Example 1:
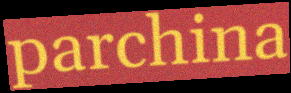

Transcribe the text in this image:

parchina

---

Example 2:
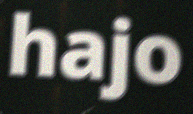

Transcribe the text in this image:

hajo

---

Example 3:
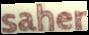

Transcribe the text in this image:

saher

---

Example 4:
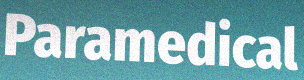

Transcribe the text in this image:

Paramedical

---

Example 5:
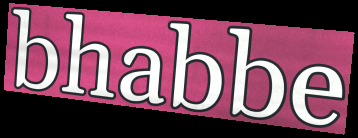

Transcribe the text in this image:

bhabbe